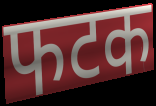
फटक